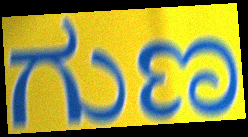
ಗುಣ